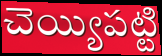
చెయ్యిపట్టి